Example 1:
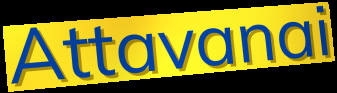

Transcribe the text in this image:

Attavanai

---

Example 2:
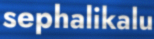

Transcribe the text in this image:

sephalikalu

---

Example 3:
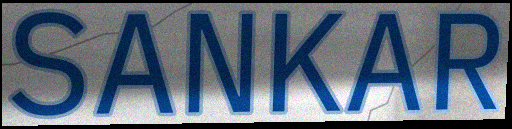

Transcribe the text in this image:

SANKAR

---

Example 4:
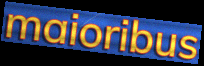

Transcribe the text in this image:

maioribus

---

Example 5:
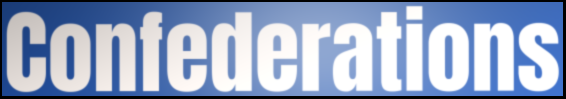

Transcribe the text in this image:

Confederations